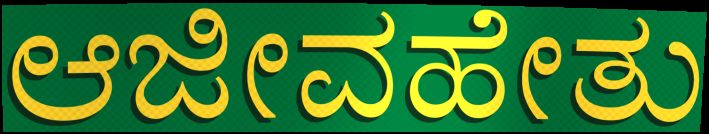
ಆಜೀವಹೇತು